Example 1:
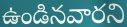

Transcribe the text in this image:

ఉండినవారని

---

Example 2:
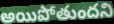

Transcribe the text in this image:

అయిపోతుందని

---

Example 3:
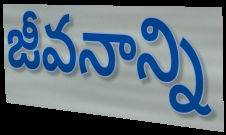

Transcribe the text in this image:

జీవనాన్ని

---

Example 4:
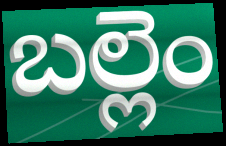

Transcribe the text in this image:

బల్లెం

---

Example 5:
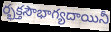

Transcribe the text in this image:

ర్భక్తసౌభాగ్యదాయినీ